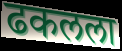
ढकलला